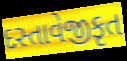
દસ્તાવેજીકૃત